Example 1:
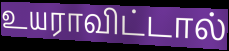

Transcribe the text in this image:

உயராவிட்டால்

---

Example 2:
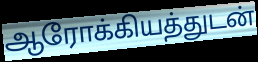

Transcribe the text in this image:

ஆரோக்கியத்துடன்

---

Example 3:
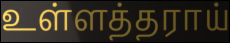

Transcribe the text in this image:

உள்ளத்தராய்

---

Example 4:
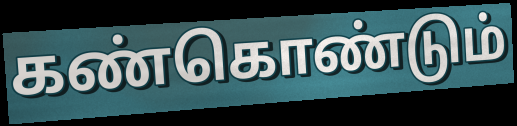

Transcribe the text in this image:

கண்கொண்டும்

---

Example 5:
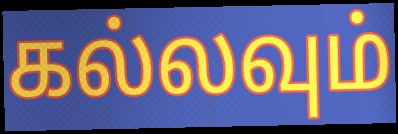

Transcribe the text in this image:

கல்லவும்